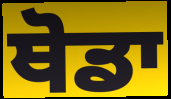
ਥੋਡਾ